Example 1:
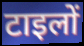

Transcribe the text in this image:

टाइलों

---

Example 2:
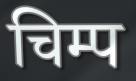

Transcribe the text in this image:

चिम्प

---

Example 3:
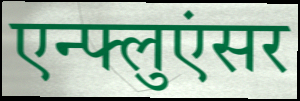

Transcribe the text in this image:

एन्फ्लुएंसर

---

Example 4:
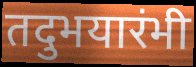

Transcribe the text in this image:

तदुभयारंभी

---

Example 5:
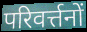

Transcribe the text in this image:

परिवर्त्तनों